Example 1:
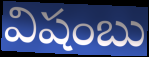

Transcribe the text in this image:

విషంబు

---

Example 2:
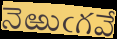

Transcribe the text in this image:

నెఱుఁగవే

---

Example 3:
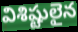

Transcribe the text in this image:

విశిష్టులైన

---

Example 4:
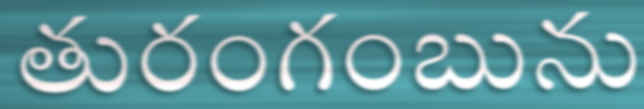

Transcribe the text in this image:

తురంగంబును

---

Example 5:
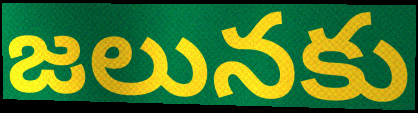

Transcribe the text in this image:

జలునకు